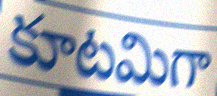
కూటమిగా